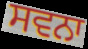
ਸਵਨਾ